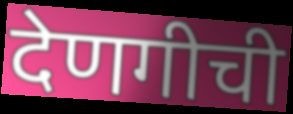
देणगीची